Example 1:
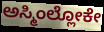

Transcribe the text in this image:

ಅಸ್ಮಿಂಲ್ಲೋಕೇ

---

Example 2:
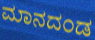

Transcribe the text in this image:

ಮಾನದಂಡ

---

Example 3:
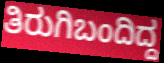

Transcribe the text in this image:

ತಿರುಗಿಬಂದಿದ್ದ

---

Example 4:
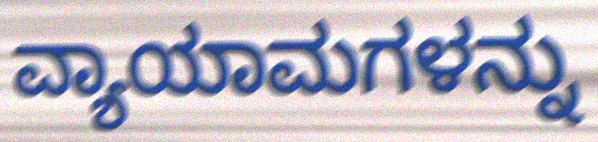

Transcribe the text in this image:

ವ್ಯಾಯಾಮಗಳನ್ನು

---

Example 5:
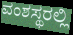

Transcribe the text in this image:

ವಂಶಸ್ಥರಲ್ಲಿ